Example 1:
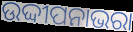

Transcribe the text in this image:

ଉଦ୍ଦୀପନାଭରା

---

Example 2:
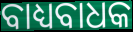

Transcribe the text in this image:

ବାଧ୍ୟବାଧକ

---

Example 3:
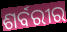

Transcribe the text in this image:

ଶର୍ବରୀର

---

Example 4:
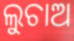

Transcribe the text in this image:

ଲୁଚାଅ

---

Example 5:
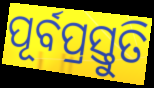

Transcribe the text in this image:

ପୂର୍ବପ୍ରସ୍ତୁତି